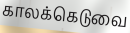
காலக்கெடுவை